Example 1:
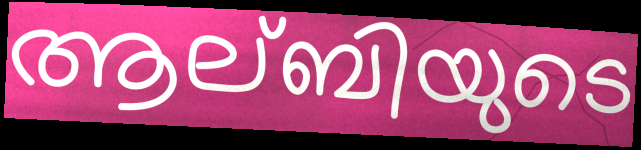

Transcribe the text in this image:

ആല്ബിയുടെ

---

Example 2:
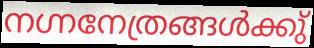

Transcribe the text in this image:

നഗ്നനേത്രങ്ങൾക്കു്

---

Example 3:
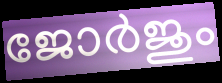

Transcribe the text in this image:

ജോർജും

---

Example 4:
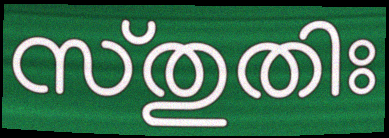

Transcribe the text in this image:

സ്തുതിഃ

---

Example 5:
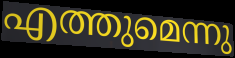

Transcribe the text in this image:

എത്തുമെന്നു